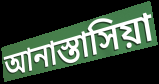
আনাস্তাসিয়া